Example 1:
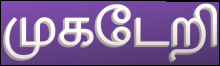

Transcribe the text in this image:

முகடேறி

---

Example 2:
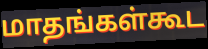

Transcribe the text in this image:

மாதங்கள்கூட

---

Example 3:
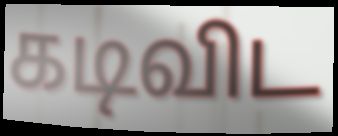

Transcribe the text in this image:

கடிவிட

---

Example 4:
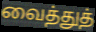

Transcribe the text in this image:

வைத்துத்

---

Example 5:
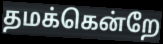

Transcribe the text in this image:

தமக்கென்றே